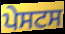
ਪੇਸਟਸ